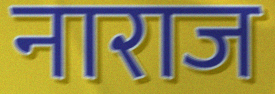
नाराज